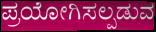
ಪ್ರಯೋಗಿಸಲ್ಪಡುವ